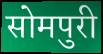
सोमपुरी